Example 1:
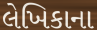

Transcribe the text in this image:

લેખિકાના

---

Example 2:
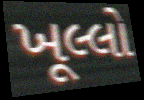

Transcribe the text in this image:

ખૂલ્લો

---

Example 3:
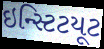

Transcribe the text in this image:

ઇન્સ્ટિટયૂટ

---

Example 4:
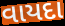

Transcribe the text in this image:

વાયદા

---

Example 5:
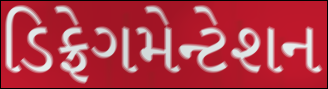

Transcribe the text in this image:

ડિફ્રેગમેન્ટેશન